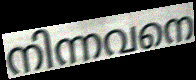
നിന്നവനെ